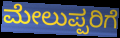
ಮೇಲುಪ್ಪರಿಗೆ